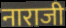
नाराजी